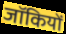
जॉकियों